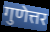
गुणेत्तर